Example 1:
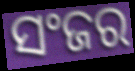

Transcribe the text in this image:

ସଂଜର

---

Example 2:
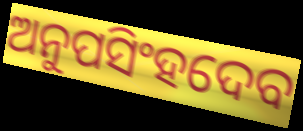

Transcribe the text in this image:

ଅନୁପସିଂହଦେବ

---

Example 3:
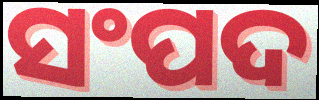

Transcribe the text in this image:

ସଂପଦ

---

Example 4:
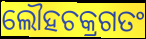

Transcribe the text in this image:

ଲୌହଚକ୍ରଗତଂ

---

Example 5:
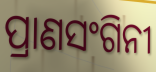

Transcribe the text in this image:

ପ୍ରାଣସଂଗିନୀ